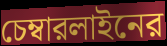
চেম্বারলাইনের